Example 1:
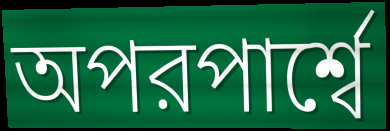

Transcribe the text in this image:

অপরপার্শ্বে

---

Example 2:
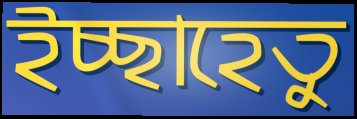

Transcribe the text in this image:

ইচ্ছাহেতু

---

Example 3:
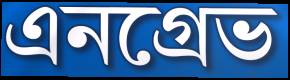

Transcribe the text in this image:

এনগ্রেভ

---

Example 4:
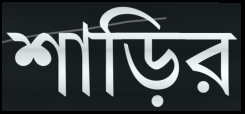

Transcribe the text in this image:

শাড়ির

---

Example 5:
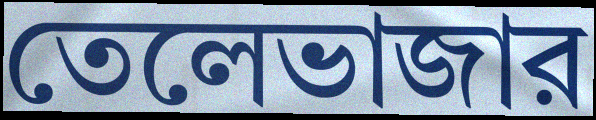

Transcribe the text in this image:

তেলেভাজার